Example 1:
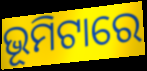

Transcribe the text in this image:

ଭୂମିଟାରେ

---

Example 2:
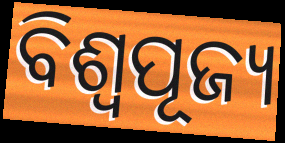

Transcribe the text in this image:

ବିଶ୍ୱପୂଜ୍ୟ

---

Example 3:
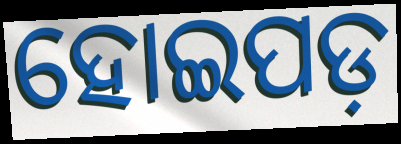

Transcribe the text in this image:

ହୋଇପଡ଼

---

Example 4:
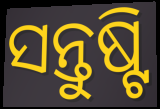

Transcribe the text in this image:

ସନ୍ତୁଷ୍ଟି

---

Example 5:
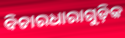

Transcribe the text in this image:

ବିଚାରଧାରାଗୁଡ଼ିକ